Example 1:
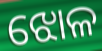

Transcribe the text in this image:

ଝୋଳ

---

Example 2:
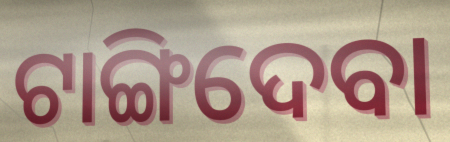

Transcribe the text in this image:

ଟାଙ୍ଗିଦେବା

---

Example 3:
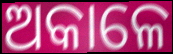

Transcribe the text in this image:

ଅକାଳେ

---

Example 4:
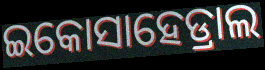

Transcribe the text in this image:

ଇକୋସାହେଡ୍ରାଲ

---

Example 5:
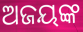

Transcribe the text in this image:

ଅଜୟଙ୍କ